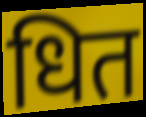
धित